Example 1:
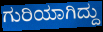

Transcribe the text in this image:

ಗುರಿಯಾಗಿದ್ದು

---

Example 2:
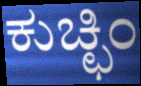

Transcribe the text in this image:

ಕುಚ್ಛಿಂ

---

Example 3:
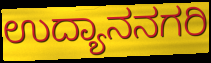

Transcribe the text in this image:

ಉದ್ಯಾನನಗರಿ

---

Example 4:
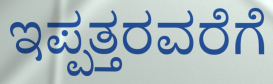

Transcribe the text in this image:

ಇಪ್ಪತ್ತರವರೆಗೆ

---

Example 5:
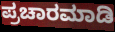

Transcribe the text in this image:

ಪ್ರಚಾರಮಾಡಿ